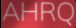
AHRQ